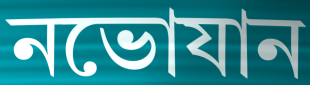
নভোযান